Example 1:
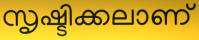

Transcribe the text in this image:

സൃഷ്ടിക്കലാണ്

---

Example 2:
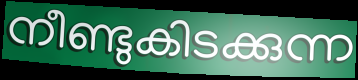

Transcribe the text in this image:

നീണ്ടുകിടക്കുന്ന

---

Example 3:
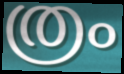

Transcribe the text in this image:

ത്രം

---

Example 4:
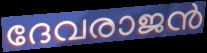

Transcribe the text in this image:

ദേവരാജൻ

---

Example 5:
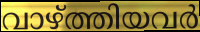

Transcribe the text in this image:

വാഴ്ത്തിയവർ